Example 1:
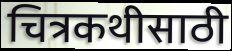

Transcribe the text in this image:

चित्रकथीसाठी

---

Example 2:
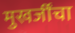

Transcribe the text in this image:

मुखर्जींचा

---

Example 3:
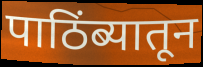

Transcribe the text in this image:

पाठिंब्यातून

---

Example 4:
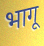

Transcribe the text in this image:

भागू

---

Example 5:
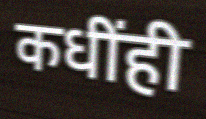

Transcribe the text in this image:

कधींही